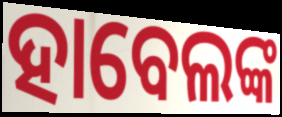
ହାବେଲଙ୍କ